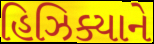
હિઝિક્યાને